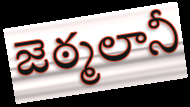
జెఠ్మలానీ